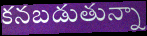
కనబడుతున్నా